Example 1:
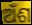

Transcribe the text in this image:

ଅଁଶ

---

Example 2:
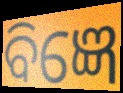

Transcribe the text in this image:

ବିଜ୍ଞେ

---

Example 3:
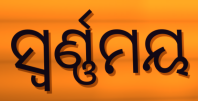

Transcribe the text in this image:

ସ୍ୱର୍ଣ୍ଣମୟ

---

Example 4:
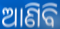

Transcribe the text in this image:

ଆଣିବି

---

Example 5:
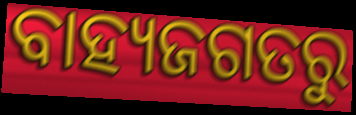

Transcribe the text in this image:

ବାହ୍ୟଜଗତରୁ